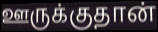
ஊருக்குதான்